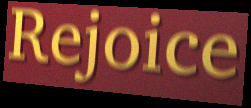
Rejoice